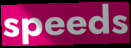
speeds